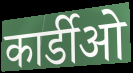
कार्डीओ